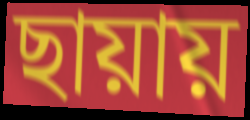
ছায়ায়